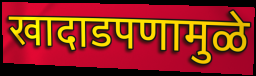
खादाडपणामुळे